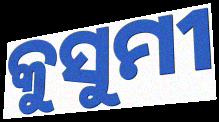
କୁସୁମୀ